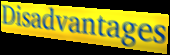
Disadvantages